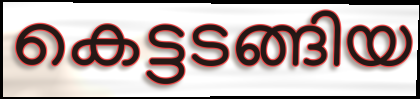
കെട്ടടങ്ങിയ